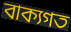
বাক্যগত